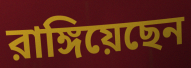
রাঙ্গিয়েছেন